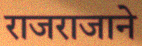
राजराजाने